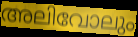
അലിവോലും